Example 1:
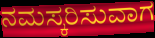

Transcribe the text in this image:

ನಮಸ್ಕರಿಸುವಾಗ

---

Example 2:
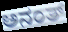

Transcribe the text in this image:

ಅನಂತ್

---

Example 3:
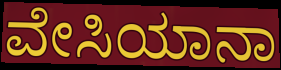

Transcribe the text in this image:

ವೇಸಿಯಾನಾ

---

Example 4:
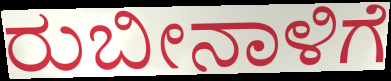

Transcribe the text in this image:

ರುಬೀನಾಳಿಗೆ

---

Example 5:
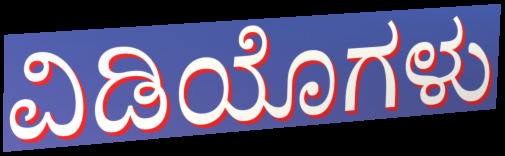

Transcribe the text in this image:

ವಿಡಿಯೊಗಳು